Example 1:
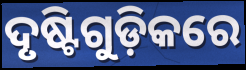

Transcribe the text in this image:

ଦୃଷ୍ଟିଗୁଡ଼ିକରେ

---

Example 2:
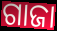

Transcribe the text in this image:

ଗାଜା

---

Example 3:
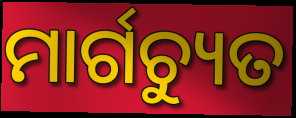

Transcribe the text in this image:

ମାର୍ଗଚ୍ୟୁତ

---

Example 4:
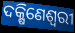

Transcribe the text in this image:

ଦକ୍ଷିଣେଶ୍ଵରୀ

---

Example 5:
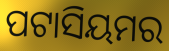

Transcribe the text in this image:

ପଟାସିୟମର